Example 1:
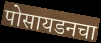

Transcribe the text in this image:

पोसायडनचा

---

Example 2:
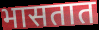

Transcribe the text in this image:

भासतात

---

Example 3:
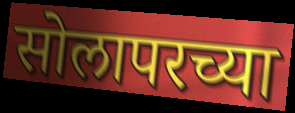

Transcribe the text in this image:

सोलापरच्या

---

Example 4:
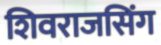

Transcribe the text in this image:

शिवराजसिंग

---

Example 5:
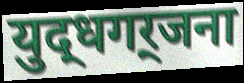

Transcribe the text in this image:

युद्धगर्जना